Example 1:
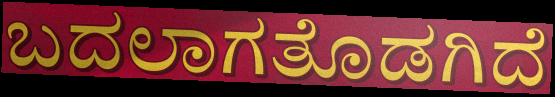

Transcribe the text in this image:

ಬದಲಾಗತೊಡಗಿದೆ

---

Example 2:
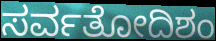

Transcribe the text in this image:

ಸರ್ವತೋದಿಶಂ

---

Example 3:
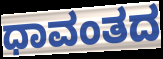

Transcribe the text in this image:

ಧಾವಂತದ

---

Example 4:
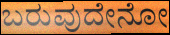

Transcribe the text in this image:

ಬರುವುದೇನೋ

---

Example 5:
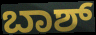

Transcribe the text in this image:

ಬಾಶ್